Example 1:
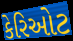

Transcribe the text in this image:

કેરિઓટ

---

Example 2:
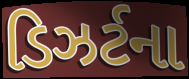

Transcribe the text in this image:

ડિઝર્ટના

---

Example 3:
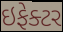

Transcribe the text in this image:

ઇફેક્ટર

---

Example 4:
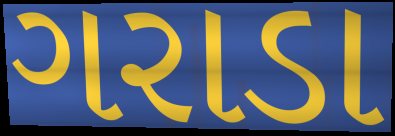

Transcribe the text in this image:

ગરાડા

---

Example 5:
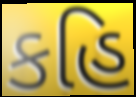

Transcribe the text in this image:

કહિ